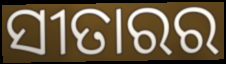
ସୀତାରର